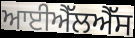
ਆਈਐੱਲਐੱਸ